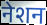
नेशन